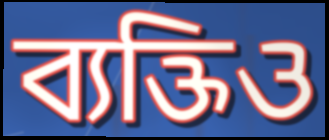
ব্যক্তিও